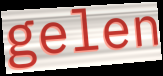
gelen